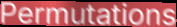
Permutations